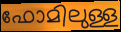
ഫോമിലുള്ള